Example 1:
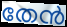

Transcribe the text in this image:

തേൻ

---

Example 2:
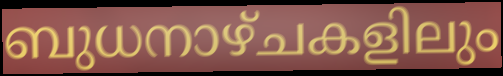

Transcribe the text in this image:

ബുധനാഴ്ചകളിലും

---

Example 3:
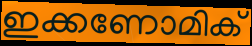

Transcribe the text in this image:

ഇക്കണോമിക്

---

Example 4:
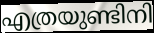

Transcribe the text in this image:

എത്രയുണ്ടിനി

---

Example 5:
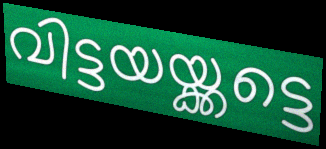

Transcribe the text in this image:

വിട്ടയയ്ക്കട്ടെ